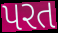
પરત